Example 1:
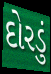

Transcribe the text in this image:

દોરડું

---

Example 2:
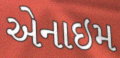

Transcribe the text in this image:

એનાઇમ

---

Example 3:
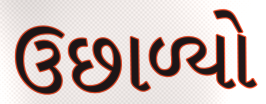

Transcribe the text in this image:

ઉછાળ્યો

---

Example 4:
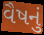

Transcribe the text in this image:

વૈષનું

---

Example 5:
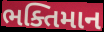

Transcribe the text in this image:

ભક્તિમાન